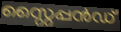
സ്റ്റൈപ്പൻഡ്